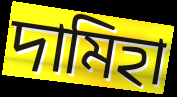
দামিহা